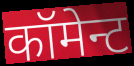
कॉमेन्ट